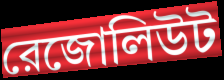
রেজোলিউট